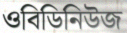
ওবিডিনিউজ